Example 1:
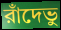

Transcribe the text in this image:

রাঁদেভু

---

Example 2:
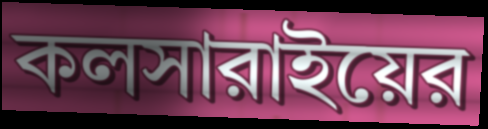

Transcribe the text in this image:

কলসারাইয়ের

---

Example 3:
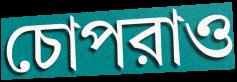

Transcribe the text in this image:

চোপরাও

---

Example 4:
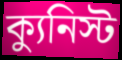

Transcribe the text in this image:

ক্যুনিস্ট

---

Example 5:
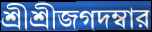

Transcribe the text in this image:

শ্রীশ্রীজগদম্বার